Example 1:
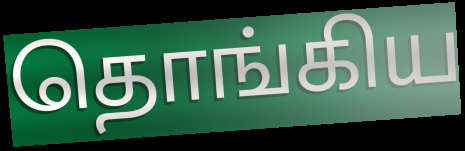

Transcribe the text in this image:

தொங்கிய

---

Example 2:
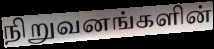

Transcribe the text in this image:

நிறுவனங்களின்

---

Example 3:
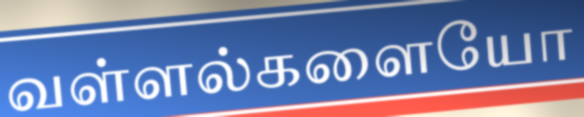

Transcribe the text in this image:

வள்ளல்களையோ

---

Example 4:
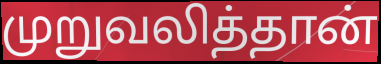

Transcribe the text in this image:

முறுவலித்தான்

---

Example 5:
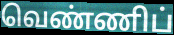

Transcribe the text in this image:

வெண்ணிப்